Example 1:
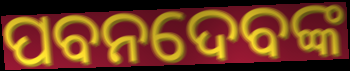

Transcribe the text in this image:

ପବନଦେବଙ୍କ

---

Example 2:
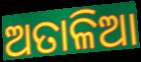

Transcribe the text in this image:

ଅତାଳିଆ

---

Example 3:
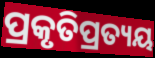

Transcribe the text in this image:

ପ୍ରକୃତିପ୍ରତ୍ୟୟ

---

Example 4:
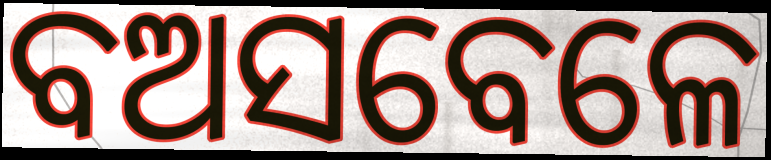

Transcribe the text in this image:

ବଅସବେଳେ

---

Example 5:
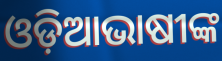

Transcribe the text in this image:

ଓଡ଼ିଆଭାଷୀଙ୍କ